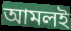
আমলই